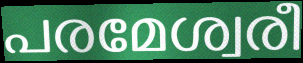
പരമേശ്വരീ